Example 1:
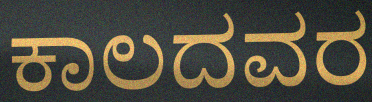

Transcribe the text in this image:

ಕಾಲದವರ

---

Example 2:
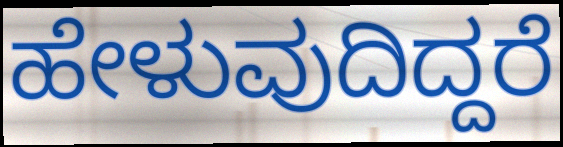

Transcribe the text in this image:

ಹೇಳುವುದಿದ್ದರೆ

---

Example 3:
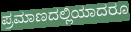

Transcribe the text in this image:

ಪ್ರಮಾಣದಲ್ಲಿಯಾದರೂ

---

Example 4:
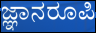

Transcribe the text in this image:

ಜ್ಞಾನರೂಪಿ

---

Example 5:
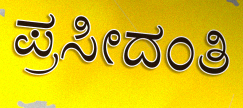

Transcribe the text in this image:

ಪ್ರಸೀದಂತಿ